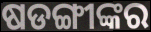
ଷଡଙ୍ଗୀଙ୍କର